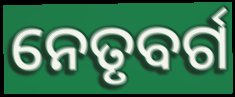
ନେତୃବର୍ଗ